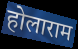
होलाराम